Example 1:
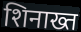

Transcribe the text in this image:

शिनाख्त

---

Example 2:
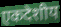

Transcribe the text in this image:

एकदेशीय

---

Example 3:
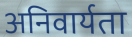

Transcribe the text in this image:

अनिवार्यता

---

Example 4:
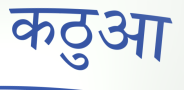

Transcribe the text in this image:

कठुआ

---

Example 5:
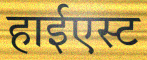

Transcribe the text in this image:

हाईएस्ट